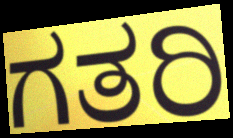
ಗತರಿ